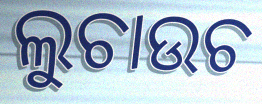
ଲୁଚାଉଚ